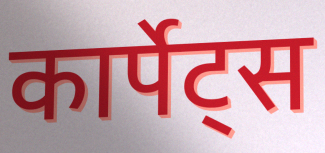
कार्पेट्स